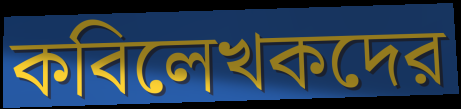
কবিলেখকদের